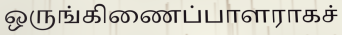
ஒருங்கிணைப்பாளராகச்